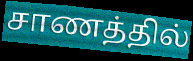
சாணத்தில்